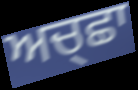
ਅਚ੍ਛਾ